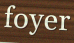
foyer